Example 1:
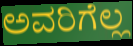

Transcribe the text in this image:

ಅವರಿಗೆಲ್ಲ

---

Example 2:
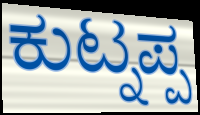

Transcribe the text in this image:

ಕುಟ್ನಪ್ಪ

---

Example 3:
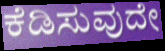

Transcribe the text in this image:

ಕೆಡಿಸುವುದೇ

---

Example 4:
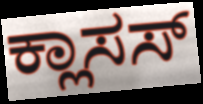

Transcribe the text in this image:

ಕ್ಲಾಸಸ್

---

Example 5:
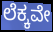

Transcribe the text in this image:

ಲೆಕ್ಕವೇ